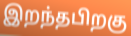
இறந்தபிறகு